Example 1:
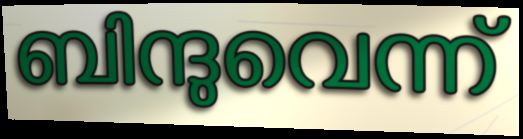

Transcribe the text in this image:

ബിന്ദുവെന്ന്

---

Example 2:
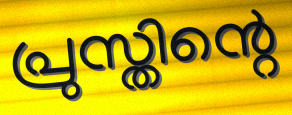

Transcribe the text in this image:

പ്രുസ്തിന്റെ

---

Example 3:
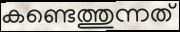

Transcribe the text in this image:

കണ്ടെത്തുന്നത്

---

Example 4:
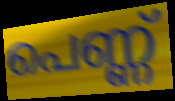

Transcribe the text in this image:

പെണ്ണ്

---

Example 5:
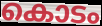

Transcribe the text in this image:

കൊടം